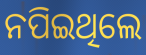
ନପିଇଥିଲେ